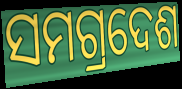
ସମଗ୍ରଦେଶ